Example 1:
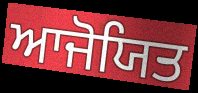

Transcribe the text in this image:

ਆਜੋਯਿਤ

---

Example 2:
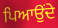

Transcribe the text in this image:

ਪਿਆਉਂਦੇ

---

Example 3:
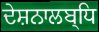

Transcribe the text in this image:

ਦੇਸ਼ਨਾਲਬ੍ਧਿ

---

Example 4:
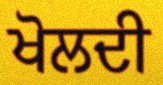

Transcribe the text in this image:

ਖੋਲਦੀ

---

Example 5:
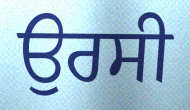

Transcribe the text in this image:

ਉਰਸੀ